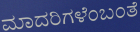
ಮಾದರಿಗಳೆಂಬಂತೆ